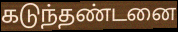
கடுந்தண்டனை